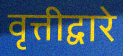
वृत्तीद्वारे